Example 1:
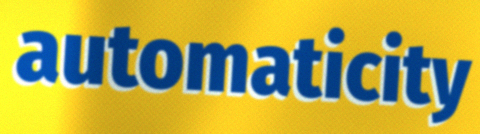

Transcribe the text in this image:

automaticity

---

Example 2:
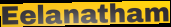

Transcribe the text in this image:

Eelanatham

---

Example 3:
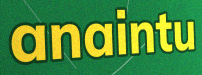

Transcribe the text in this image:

anaintu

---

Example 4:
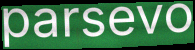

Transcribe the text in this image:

parsevo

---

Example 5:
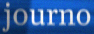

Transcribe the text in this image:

journo